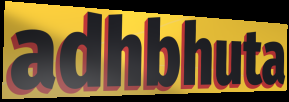
adhbhuta